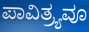
ಪಾವಿತ್ರ್ಯವೂ